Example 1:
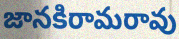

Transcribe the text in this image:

జానకిరామరావు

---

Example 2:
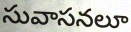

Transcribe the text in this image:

సువాసనలూ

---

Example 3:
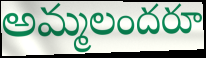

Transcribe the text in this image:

అమ్మలందరూ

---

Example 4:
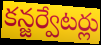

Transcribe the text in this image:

కన్జర్వేటర్లు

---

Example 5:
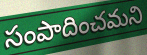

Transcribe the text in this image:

సంపాదించమని